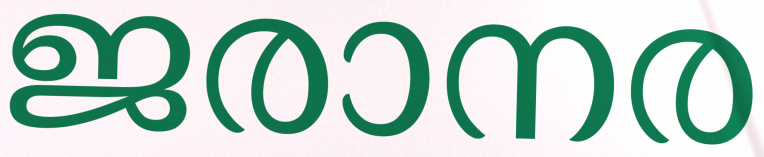
ജരാനര